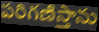
పరిగణిస్తాను